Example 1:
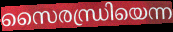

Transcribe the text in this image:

സൈരന്ധ്രിയെന്ന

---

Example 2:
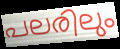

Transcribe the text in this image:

പലരിലും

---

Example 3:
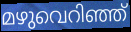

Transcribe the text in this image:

മഴുവെറിഞ്ഞ്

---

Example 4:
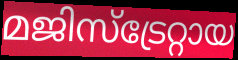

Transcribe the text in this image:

മജിസ്ട്രേറ്റായ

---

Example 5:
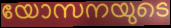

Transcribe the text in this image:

യോസനയുടെ